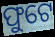
ଫୁଟେ